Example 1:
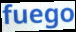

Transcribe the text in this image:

fuego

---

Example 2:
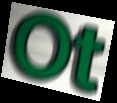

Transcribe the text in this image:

Ot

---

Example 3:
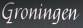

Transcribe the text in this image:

Groningen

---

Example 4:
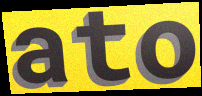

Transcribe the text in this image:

ato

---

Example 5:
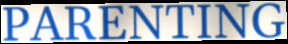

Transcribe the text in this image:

PARENTING